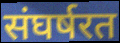
संघर्षरत